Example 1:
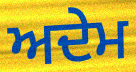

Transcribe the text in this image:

ਅਦੇਮ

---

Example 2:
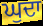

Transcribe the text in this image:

ਘੁਦਾ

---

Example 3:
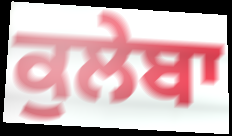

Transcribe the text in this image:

ਕੁਲੇਬਾ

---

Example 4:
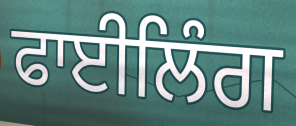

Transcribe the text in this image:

ਫਾਈਲਿੰਗ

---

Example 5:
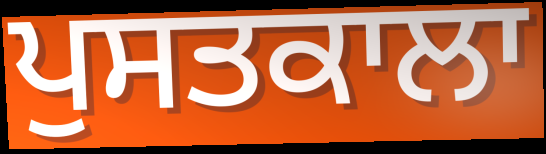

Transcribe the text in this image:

ਪੁਸਤਕਾਲਾ